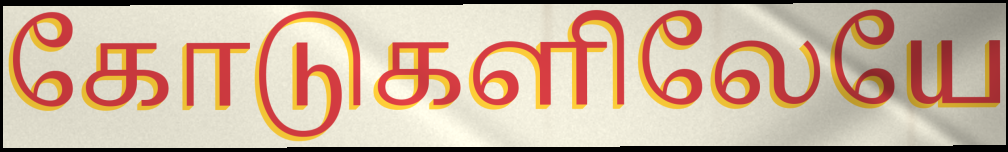
கோடுகளிலேயே